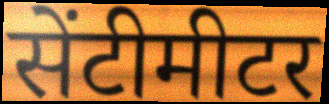
सेंटीमीटर